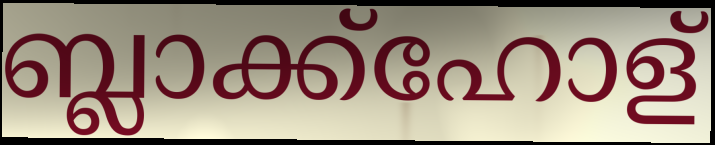
ബ്ലാക്ക്ഹോള്